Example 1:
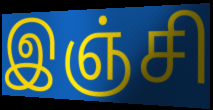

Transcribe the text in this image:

இஞ்சி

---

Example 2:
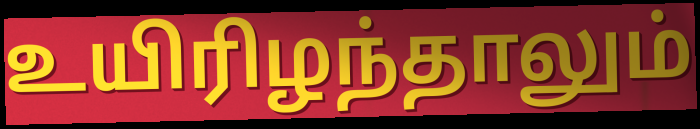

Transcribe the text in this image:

உயிரிழந்தாலும்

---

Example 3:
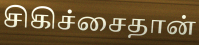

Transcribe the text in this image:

சிகிச்சைதான்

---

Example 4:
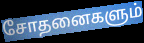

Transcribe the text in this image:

சோதனைகளும்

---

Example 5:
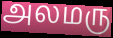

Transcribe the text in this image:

அலமரு